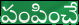
పంపించే